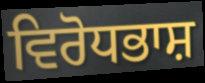
ਵਿਰੋਧਭਾਸ਼